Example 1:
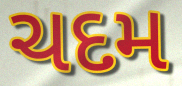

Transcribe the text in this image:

ચદમ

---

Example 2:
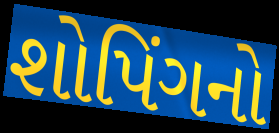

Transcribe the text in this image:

શોપિંગનો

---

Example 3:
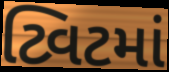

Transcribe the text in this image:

ટ્વિટમાં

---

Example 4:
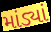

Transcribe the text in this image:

માંડ્યાં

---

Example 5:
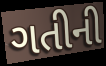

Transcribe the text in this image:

ગતીની